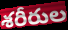
శరీరుల